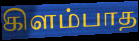
கிளம்பாத